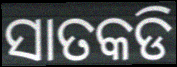
ସାତକଡି